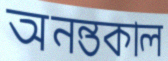
অনন্তকাল